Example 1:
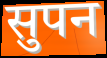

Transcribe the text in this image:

सुपन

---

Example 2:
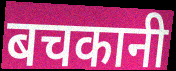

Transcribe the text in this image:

बचकानी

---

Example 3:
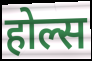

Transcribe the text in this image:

होल्स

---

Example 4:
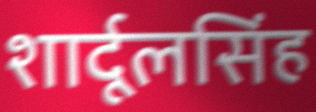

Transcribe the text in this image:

शार्दूलसिंह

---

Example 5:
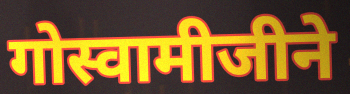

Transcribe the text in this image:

गोस्वामीजीने